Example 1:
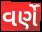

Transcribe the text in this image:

વર્ણે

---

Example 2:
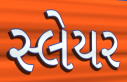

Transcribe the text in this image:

સ્લેયર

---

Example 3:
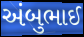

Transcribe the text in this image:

અંબુભાઈ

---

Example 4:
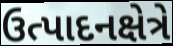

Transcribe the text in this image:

ઉત્પાદનક્ષેત્રે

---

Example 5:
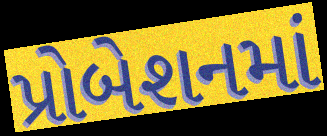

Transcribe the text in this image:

પ્રોબેશનમાં